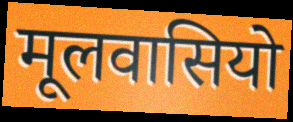
मूलवासियो